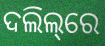
ଦଲିଲ୍‌ରେ